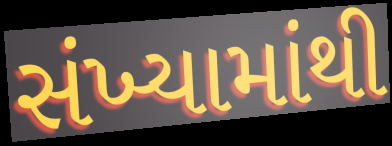
સંખ્યામાંથી